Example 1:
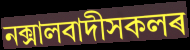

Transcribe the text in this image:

নক্সালবাদীসকলৰ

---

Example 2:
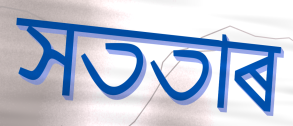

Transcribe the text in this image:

সততাৰ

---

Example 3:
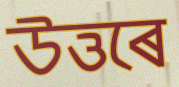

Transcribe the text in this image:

উত্তৰে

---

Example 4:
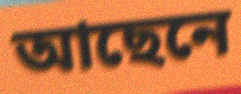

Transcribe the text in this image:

আছেনে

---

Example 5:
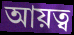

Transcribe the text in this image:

আয়ত্ব